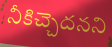
నీకిచ్చెదనని